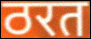
ठरत